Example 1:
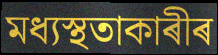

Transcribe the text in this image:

মধ্যস্থতাকাৰীৰ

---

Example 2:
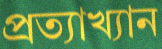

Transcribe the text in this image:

প্ৰত্যাখ্যান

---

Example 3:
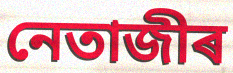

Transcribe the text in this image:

নেতাজীৰ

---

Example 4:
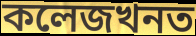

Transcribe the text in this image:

কলেজখনত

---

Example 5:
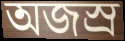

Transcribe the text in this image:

অজস্ৰ